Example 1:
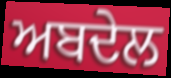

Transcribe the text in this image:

ਅਬਦੇਲ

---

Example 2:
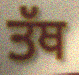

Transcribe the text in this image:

ਤੱਥ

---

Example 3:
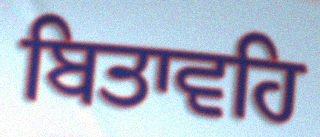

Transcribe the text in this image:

ਬਿਤਾਵਹਿ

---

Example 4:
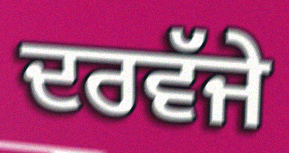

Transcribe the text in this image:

ਦਰਵੱਜੇ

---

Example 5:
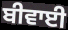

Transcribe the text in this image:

ਬੀਵਾਈ